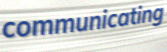
communicating